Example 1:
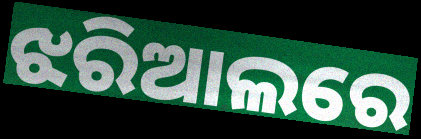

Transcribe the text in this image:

ଝରିଆଲରେ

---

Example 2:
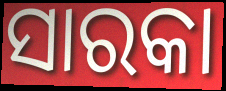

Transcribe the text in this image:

ସାରକା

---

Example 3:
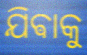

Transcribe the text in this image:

ଯିଵାକୁ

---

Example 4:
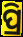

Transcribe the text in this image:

ପ୍ରି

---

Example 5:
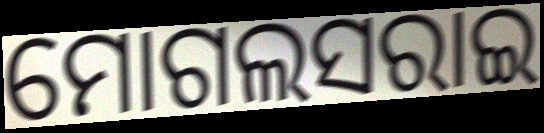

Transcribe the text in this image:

ମୋଗଲସରାଇ